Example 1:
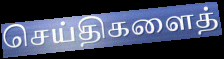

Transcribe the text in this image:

செய்திகளைத்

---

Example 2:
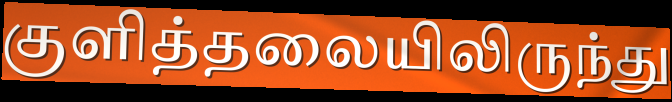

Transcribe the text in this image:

குளித்தலையிலிருந்து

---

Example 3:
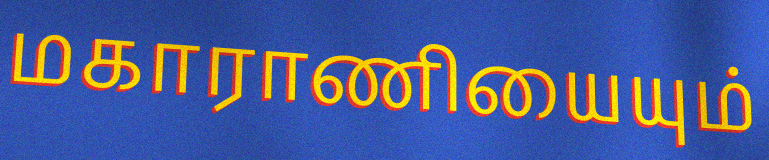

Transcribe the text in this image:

மகாராணியையும்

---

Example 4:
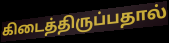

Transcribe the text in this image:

கிடைத்திருப்பதால்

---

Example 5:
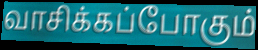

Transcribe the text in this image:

வாசிக்கப்போகும்